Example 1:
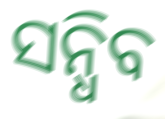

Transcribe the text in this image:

ସନ୍ଧିବ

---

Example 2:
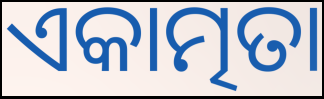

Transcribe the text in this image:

ଏକାତ୍ମତା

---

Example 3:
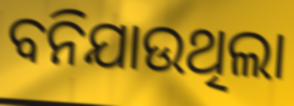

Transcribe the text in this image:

ବନିଯାଉଥିଲା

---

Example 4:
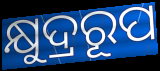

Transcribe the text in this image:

କ୍ଷୁଦ୍ରରୂପ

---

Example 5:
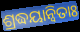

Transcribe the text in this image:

ଶ୍ରଦ୍ଧୟାନ୍ୱିତାଃ